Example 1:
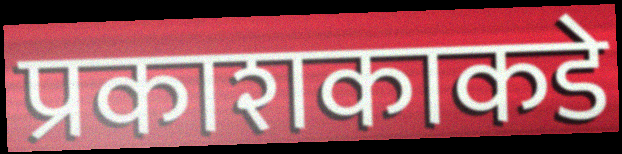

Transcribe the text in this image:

प्रकाशकाकडे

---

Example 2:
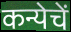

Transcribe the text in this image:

कन्येचें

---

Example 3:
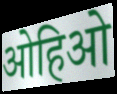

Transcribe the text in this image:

ओहिओ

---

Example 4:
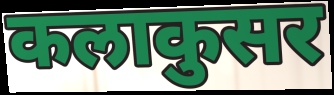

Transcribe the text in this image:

कलाकुसर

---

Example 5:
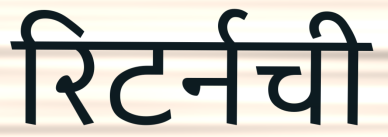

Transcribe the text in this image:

रिटर्नची